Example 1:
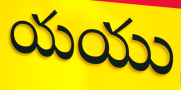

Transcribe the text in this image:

యయు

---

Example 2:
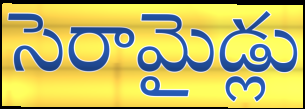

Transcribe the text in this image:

సెరామైడ్లు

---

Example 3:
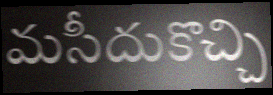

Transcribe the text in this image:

మసీదుకొచ్చి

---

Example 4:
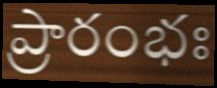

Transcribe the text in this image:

ప్రారంభః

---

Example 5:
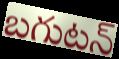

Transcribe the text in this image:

బగుటన్